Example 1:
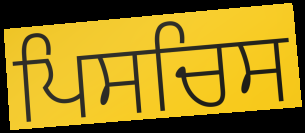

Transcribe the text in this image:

ਪਿਸਚਿਸ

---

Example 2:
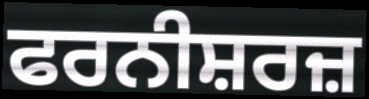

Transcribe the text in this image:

ਫਰਨੀਸ਼ਰਜ਼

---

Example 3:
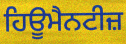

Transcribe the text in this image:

ਹਿਊਮੈਨਟੀਜ਼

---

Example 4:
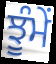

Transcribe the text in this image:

ਝੂੰਮੇਂ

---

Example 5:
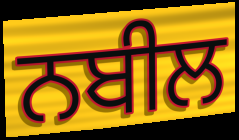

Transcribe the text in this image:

ਨਬੀਲ